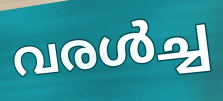
വരൾച്ച